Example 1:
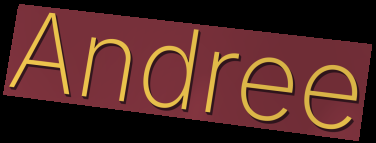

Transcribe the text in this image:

Andree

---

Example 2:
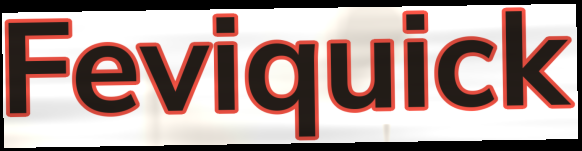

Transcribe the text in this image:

Feviquick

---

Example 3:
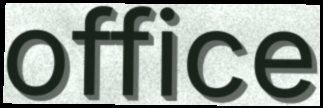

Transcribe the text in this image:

office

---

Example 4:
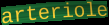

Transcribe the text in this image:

arteriole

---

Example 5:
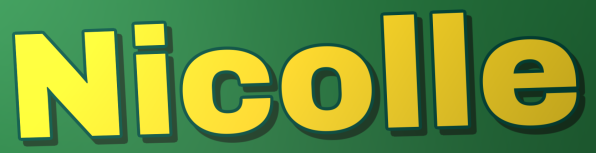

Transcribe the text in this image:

Nicolle